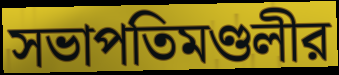
সভাপতিমণ্ডলীর